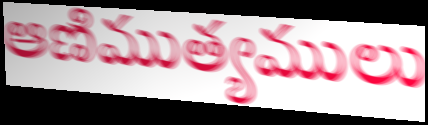
ఆణిముత్యములు